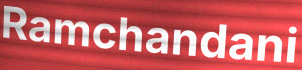
Ramchandani